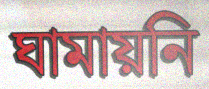
ঘামায়নি